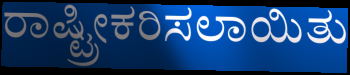
ರಾಷ್ಟ್ರೀಕರಿಸಲಾಯಿತು